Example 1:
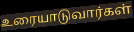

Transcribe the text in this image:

உரையாடுவார்கள்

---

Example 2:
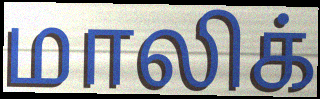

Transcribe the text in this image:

மாலிக்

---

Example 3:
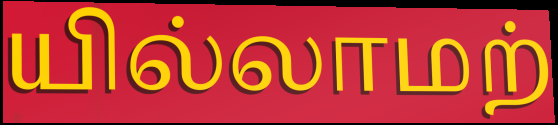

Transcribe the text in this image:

யில்லாமற்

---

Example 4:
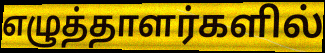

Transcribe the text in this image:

எழுத்தாளர்களில்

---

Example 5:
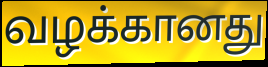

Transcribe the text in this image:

வழக்கானது